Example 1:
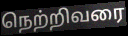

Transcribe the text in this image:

நெற்றிவரை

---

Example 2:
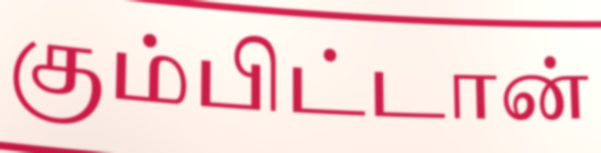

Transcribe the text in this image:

கும்பிட்டான்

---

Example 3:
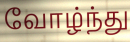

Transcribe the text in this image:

வோழ்ந்து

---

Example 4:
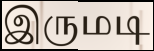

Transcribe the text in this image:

இருமடி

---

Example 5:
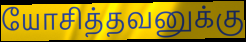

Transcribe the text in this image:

யோசித்தவனுக்கு